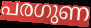
പരഗുണ